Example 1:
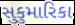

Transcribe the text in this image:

સુકુમારિકા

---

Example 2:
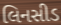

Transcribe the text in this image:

લિનસીડ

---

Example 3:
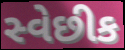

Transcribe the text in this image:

સ્વેછીક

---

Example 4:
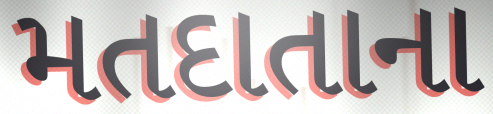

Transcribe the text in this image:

મતદાતાના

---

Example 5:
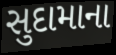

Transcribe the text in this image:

સુદામાના